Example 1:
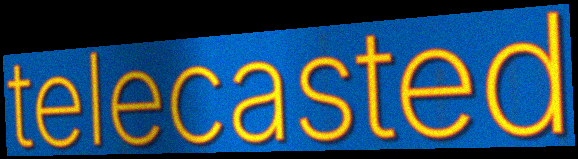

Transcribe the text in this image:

telecasted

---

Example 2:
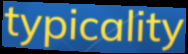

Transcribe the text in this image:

typicality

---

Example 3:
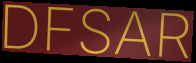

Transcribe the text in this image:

DFSAR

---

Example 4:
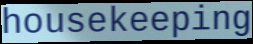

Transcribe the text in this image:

housekeeping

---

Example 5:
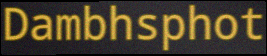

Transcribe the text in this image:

Dambhsphot